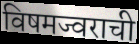
विषमज्वराची